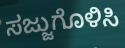
ಸಜ್ಜುಗೊಳಿಸಿ